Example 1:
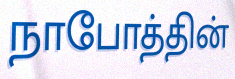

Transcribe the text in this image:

நாபோத்தின்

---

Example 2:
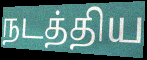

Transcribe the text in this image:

நடத்திய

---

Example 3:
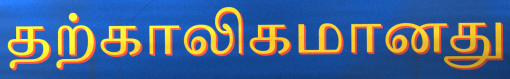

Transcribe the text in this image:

தற்காலிகமானது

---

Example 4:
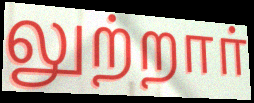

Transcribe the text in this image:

லுற்றார்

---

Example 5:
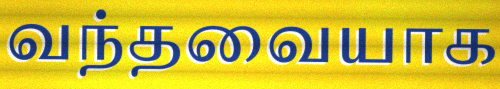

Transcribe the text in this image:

வந்தவையாக